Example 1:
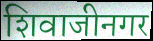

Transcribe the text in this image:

शिवाजीनगर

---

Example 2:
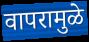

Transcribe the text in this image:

वापरामुळे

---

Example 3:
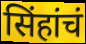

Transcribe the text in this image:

सिंहांचं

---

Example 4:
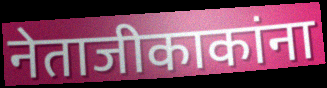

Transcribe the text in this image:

नेताजीकाकांना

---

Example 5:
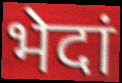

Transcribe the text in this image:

भेदां